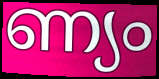
ണ്യം